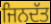
ਜਿਨਦੱਤ